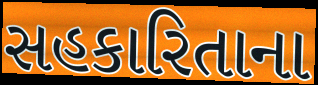
સહકારિતાના